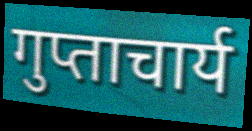
गुप्ताचार्य